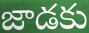
జాడకు